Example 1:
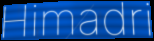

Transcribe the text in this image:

Himadri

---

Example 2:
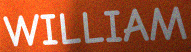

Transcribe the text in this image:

WILLIAM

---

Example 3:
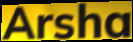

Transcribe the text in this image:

Arsha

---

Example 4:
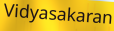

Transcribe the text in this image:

Vidyasakaran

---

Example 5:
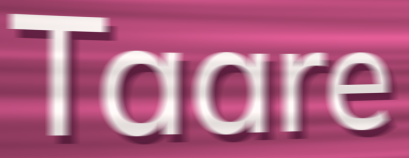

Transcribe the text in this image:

Taare